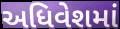
અધિવેશમાં